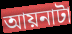
আয়নাটা